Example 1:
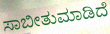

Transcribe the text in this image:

ಸಾಬೀತುಮಾಡಿದೆ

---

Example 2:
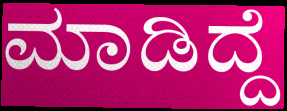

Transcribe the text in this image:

ಮಾಡಿದ್ದೆ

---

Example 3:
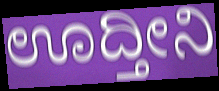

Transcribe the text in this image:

ಊದ್ತೀನಿ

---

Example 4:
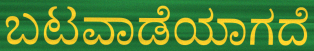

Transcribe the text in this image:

ಬಟವಾಡೆಯಾಗದೆ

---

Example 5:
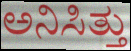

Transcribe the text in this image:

ಅನಿಸಿತ್ತು